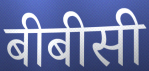
बीबीसी